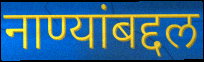
नाण्यांबद्दल